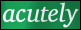
acutely